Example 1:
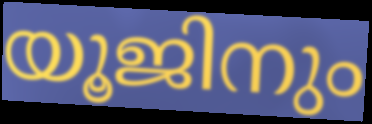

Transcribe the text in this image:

യൂജിനും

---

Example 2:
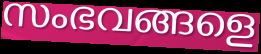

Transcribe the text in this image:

സംഭവങ്ങളെ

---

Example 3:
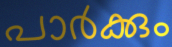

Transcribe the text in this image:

പാർക്കും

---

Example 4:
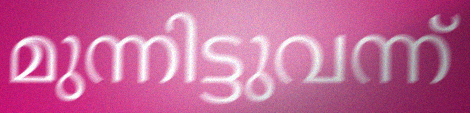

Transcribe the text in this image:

മുന്നിട്ടുവന്ന്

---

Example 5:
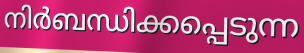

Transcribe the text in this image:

നിർബന്ധിക്കപ്പെടുന്ന